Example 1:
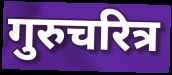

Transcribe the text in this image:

गुरुचरित्र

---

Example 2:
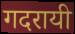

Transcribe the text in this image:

गदरायी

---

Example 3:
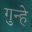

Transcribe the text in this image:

गुन्हे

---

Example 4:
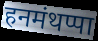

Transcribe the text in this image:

हनमंथप्पा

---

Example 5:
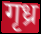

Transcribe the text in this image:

गृध्र